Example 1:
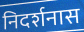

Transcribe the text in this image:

निदर्शनास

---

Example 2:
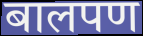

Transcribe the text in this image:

बालपण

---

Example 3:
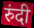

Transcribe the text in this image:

रुंदी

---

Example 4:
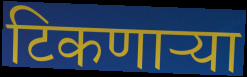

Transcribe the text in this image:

टिकणाऱ्या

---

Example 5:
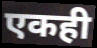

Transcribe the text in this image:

एकही